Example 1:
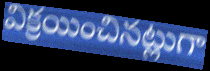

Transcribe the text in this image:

విక్రయించినట్లుగా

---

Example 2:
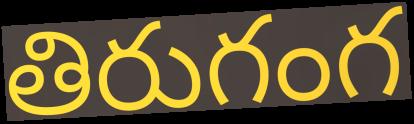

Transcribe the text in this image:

తిరుగంగ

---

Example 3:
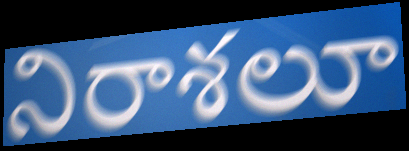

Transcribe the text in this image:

నిరాశలూ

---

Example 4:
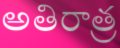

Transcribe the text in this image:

అతిరాత్ర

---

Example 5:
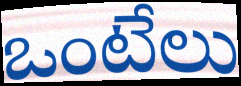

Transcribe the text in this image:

ఒంటేలు